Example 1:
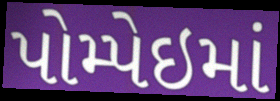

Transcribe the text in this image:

પોમ્પેઇમાં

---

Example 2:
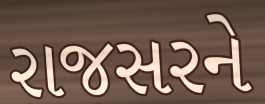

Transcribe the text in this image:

રાજસરને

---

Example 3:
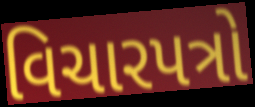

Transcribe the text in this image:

વિચારપત્રો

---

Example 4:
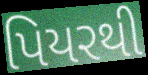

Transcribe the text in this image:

પિયરથી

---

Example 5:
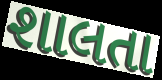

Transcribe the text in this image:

શાલતા